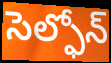
సెల్ఫోన్